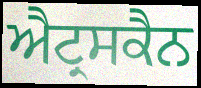
ਐਟ੍ਰਸਕੈਨ